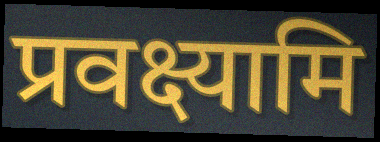
प्रवक्ष्यामि